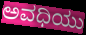
ಅವಧಿಯು